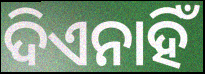
ଦିଏନାହିଁ